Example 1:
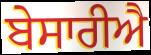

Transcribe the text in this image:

ਬੇਸਾਰੀਐ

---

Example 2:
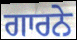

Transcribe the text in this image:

ਗਾਰਨੇ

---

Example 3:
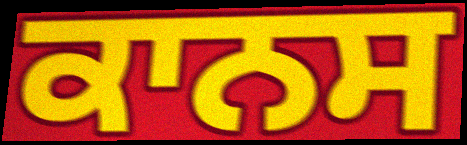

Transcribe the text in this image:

ਕਾਨਸ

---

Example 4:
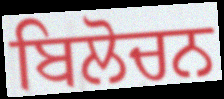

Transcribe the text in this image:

ਬਿਲੋਚਨ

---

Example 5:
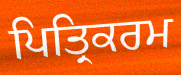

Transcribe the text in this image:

ਪਿਤ੍ਰਿਕਰਮ